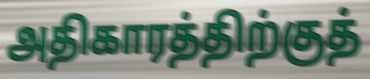
அதிகாரத்திற்குத்